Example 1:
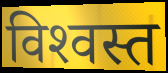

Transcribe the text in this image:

विश्‍वस्त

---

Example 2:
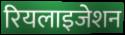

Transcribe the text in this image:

रियलाइजेशन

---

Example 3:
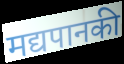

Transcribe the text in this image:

मद्यपानकी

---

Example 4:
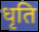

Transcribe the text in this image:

धृति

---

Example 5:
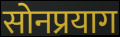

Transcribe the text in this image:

सोनप्रयाग